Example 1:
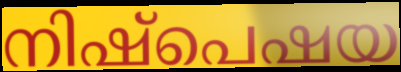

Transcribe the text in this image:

നിഷ്പെഷയ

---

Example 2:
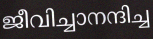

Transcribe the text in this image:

ജീവിച്ചാനന്ദിച്ച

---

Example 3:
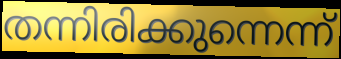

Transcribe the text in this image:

തന്നിരിക്കുന്നെന്ന്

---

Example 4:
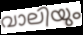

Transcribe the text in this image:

വാലിയും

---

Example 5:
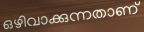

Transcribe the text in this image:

ഒഴിവാക്കുന്നതാണ്